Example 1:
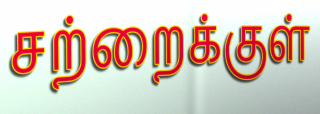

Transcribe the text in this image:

சற்றைக்குள்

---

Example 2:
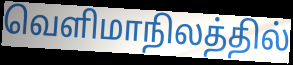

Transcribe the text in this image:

வெளிமாநிலத்தில்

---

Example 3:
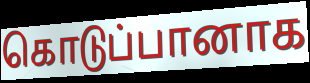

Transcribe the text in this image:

கொடுப்பானாக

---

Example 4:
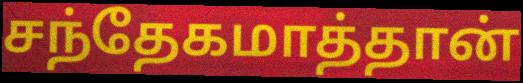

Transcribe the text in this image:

சந்தேகமாத்தான்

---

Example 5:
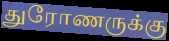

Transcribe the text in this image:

துரோணருக்கு